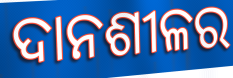
ଦାନଶୀଳର